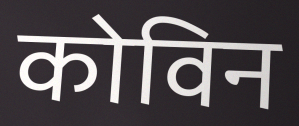
कोविन